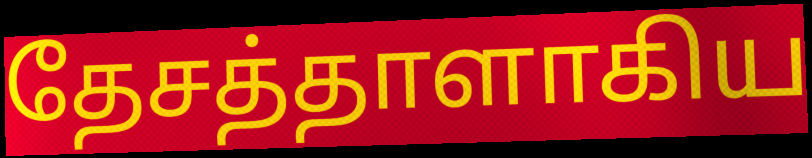
தேசத்தாளாகிய